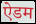
ऐडम